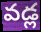
వడ్ల